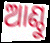
ଆଣ୍ଠୁ